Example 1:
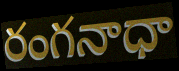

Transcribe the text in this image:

రంగనాధా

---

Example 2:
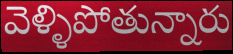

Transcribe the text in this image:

వెళ్ళిపోతున్నారు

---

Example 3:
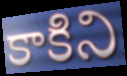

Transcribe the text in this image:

కాకిని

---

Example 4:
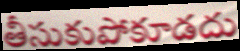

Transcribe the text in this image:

తీసుకుపోకూడదు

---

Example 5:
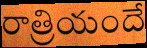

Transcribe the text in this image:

రాత్రియందే